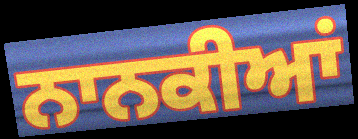
ਨਾਨਕੀਆਂ